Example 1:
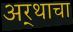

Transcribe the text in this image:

अर्थाचा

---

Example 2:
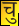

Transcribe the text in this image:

चु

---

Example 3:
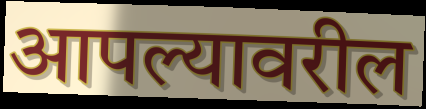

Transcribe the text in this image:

आपल्यावरील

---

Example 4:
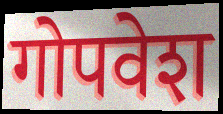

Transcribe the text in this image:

गोपवेश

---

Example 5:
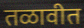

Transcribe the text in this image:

तळावीत